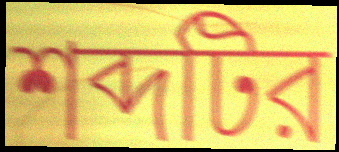
শব্দটির